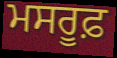
ਮਸਰੂਫ਼